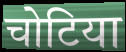
चोटिया